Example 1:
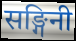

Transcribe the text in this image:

सङ्गिनी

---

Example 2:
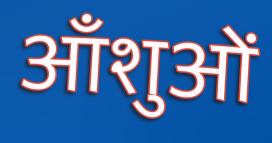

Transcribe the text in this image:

आँशुओं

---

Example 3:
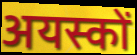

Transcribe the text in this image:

अयस्कों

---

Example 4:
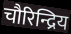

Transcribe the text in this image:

चौरिन्द्रिय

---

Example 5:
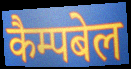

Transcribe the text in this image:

कैम्पबेल